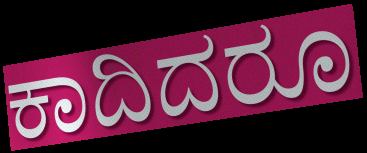
ಕಾದಿದರೂ